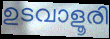
ഉടവാളൂരി